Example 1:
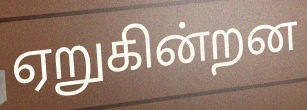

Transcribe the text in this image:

ஏறுகின்றன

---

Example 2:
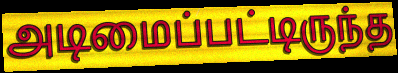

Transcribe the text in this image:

அடிமைப்பட்டிருந்த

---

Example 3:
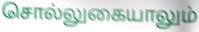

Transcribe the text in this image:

சொல்லுகையாலும்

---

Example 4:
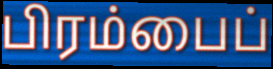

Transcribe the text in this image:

பிரம்பைப்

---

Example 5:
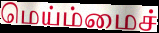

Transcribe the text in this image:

மெய்ம்மைச்